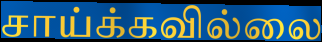
சாய்க்கவில்லை